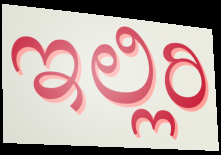
ಇಲ್ಲಿರಿ